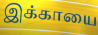
இக்காயை